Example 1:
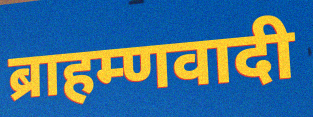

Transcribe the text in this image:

ब्राहम्णवादी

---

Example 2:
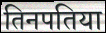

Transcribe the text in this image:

तिनपतिया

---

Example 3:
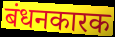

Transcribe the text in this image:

बंधनकारक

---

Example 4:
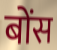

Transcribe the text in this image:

बोंस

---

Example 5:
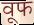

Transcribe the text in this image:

वूफ